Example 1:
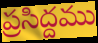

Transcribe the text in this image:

ప్రసిద్దము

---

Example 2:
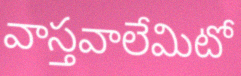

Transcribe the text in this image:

వాస్తవాలేమిటో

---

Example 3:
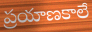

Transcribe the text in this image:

ప్రయాణకాలే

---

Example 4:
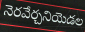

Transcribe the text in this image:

నెరవేర్చనియెడల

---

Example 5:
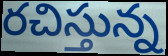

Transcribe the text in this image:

రచిస్తున్న